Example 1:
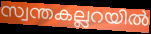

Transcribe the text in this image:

സ്വന്തകല്ലറയിൽ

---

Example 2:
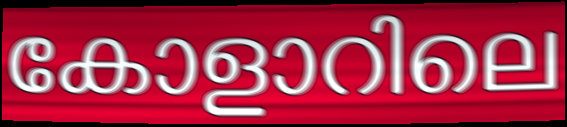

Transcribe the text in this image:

കോളാറിലെ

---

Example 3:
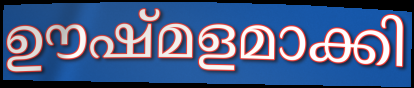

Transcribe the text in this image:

ഊഷ്മളമാക്കി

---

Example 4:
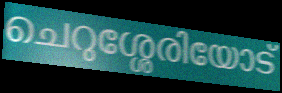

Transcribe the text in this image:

ചെറുശ്ശേരിയോട്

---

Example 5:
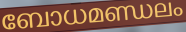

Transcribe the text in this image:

ബോധമണ്ഡലം